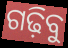
ଗଢ଼ିବୁ